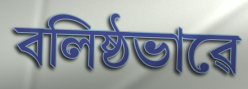
বলিষ্ঠভাৱে